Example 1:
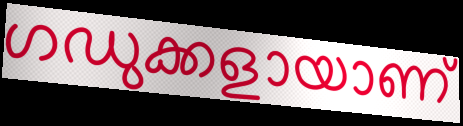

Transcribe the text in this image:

ഗഡുക്കളായാണ്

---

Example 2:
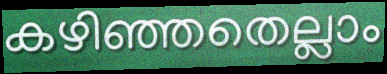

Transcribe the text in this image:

കഴിഞ്ഞതെല്ലാം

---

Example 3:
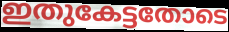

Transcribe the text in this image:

ഇതുകേട്ടതോടെ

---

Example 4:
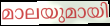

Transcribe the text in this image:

മാലയുമായി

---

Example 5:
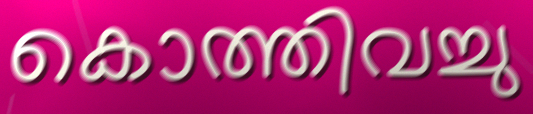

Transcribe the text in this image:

കൊത്തിവച്ചു